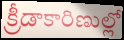
క్రీడాకారిణుల్లో